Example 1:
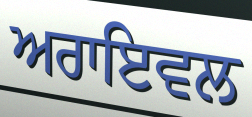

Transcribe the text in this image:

ਅਰਾਇਵਲ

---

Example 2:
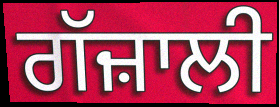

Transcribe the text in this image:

ਗੱਜ਼ਾਲੀ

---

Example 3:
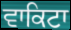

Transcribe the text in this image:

ਵਾਕਿਟਾ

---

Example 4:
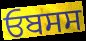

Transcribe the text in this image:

ਓਬਸਸ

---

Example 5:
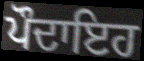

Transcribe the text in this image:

ਪੌਦਾਇਹ